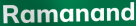
Ramanand